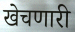
खेचणारी